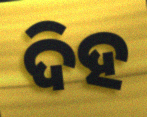
ଦିହ